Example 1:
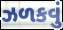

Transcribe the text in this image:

ઝળકવું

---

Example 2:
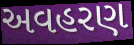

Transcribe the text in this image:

અવહરણ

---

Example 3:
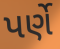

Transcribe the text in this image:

પર્ણે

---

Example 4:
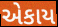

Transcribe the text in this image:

એકાય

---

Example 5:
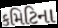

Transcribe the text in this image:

કમિટિના